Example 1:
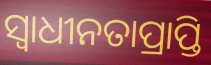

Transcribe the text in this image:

ସ୍ୱାଧୀନତାପ୍ରାପ୍ତି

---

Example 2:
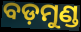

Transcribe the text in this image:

ବଡ଼ମୁଣ୍ଡ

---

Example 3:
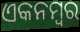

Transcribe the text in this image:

ଏକନମ୍ବର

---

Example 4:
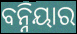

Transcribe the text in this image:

ବନ୍ନିୟାର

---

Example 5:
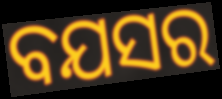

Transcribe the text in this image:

ବଯସର